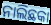
ନାଲିଛକା